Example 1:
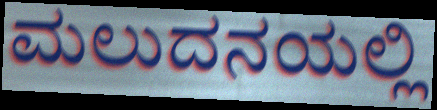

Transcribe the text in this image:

ಮಲುದನಯಲ್ಲಿ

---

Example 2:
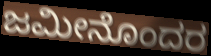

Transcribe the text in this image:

ಜಮೀನೊಂದರ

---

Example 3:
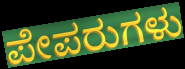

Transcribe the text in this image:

ಪೇಪರುಗಳು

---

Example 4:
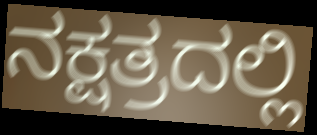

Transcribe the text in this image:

ನಕ್ಷತ್ರದಲ್ಲಿ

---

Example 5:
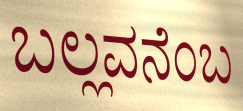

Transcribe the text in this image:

ಬಲ್ಲವನೆಂಬ